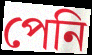
পেনি